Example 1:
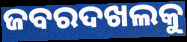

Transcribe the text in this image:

ଜବରଦଖଲକୁ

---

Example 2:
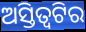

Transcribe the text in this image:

ଅସ୍ତିତ୍ୱଟିର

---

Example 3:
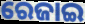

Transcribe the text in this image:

ରେଜାଇ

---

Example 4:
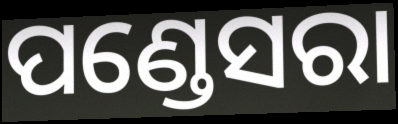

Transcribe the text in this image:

ପଣ୍ଡେସରା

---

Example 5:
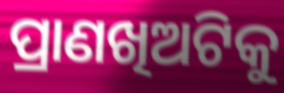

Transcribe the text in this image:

ପ୍ରାଣଖିଅଟିକୁ